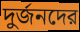
দুর্জনদের